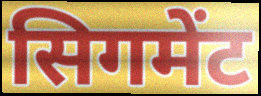
सिगमेंट